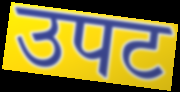
उपट